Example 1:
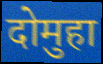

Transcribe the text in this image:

दोमुहा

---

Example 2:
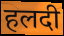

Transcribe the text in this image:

हलदी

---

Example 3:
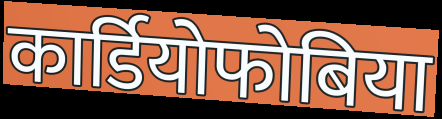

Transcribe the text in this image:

कार्डियोफोबिया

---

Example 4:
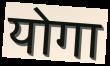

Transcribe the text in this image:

योगा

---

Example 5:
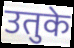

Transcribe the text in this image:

उतुके